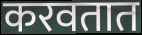
करवतात